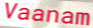
Vaanam